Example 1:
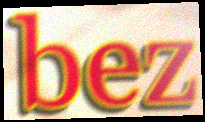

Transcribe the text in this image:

bez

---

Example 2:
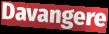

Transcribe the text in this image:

Davangere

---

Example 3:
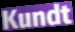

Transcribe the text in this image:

Kundt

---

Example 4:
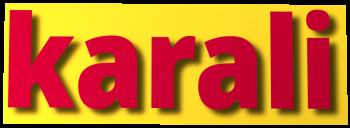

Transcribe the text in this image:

karali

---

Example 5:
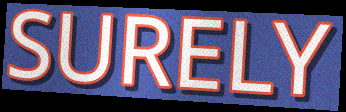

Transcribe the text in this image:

SURELY